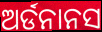
ଅର୍ଡନାନସ